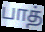
பாத்